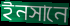
ইনসানে